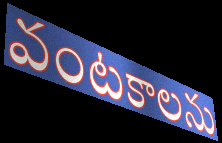
వంటకాలను